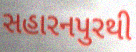
સહારનપુરથી